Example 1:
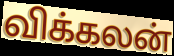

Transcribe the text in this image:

விக்கலன்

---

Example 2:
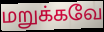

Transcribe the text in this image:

மறுக்கவே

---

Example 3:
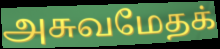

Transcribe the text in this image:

அசுவமேதக்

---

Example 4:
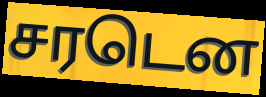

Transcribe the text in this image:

சரடென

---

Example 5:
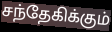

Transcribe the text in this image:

சந்தேகிக்கும்